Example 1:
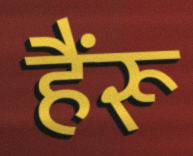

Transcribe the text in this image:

हैंरू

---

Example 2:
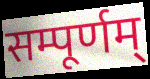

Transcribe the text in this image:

सम्पूर्णम्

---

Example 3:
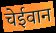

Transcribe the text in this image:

चेईवान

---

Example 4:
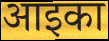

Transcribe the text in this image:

आइका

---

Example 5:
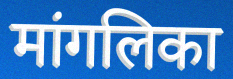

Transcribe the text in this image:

मांगलिका